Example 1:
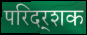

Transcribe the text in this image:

परिदर्शक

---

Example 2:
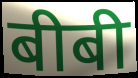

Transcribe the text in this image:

बीबी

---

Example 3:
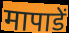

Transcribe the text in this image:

मापाडें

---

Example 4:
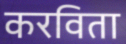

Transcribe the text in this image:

करविता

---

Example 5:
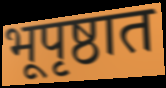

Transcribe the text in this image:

भूपृष्ठात